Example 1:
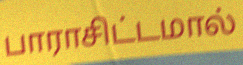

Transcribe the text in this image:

பாராசிட்டமால்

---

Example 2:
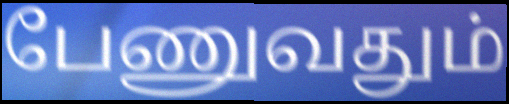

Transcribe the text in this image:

பேணுவதும்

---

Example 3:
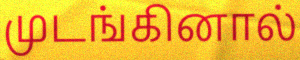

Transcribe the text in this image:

முடங்கினால்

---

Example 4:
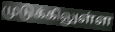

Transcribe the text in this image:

முடுக்கிலுள்ள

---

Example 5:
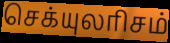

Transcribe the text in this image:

செக்யுலரிசம்